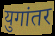
युगांतर